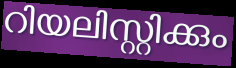
റിയലിസ്റ്റിക്കും